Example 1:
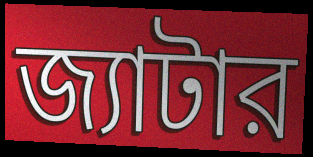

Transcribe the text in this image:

জ্যাটার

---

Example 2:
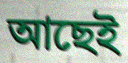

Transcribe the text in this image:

আছেই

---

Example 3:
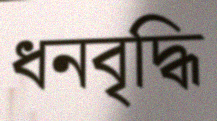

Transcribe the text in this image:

ধনবৃদ্ধি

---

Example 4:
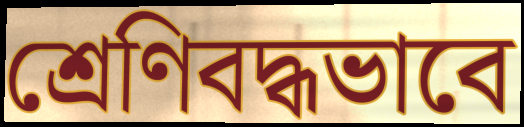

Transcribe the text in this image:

শ্রেণিবদ্ধভাবে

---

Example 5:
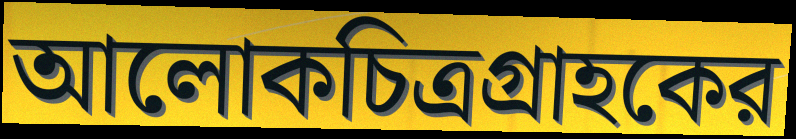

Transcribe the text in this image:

আলোকচিত্রগ্রাহকের